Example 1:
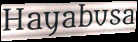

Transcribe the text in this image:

Hayabusa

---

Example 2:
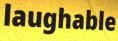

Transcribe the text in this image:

laughable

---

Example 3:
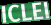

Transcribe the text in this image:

ICLEI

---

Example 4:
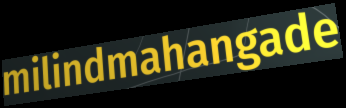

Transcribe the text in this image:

milindmahangade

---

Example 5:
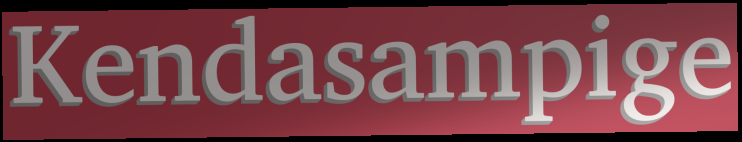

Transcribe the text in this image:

Kendasampige